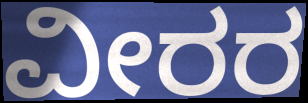
ವೀರರ